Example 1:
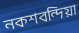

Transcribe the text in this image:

নকশবন্দিয়া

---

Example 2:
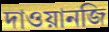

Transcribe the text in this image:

দাওয়ানজি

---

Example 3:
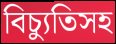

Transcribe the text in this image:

বিচ্যুতিসহ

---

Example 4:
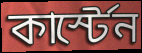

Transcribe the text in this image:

কার্স্টেন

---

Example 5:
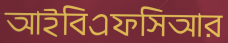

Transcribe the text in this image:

আইবিএফসিআর